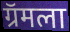
ग्रॅमला